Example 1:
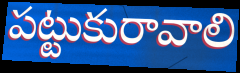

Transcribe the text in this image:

పట్టుకురావాలి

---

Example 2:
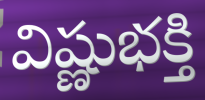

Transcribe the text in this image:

విష్ణుభక్తి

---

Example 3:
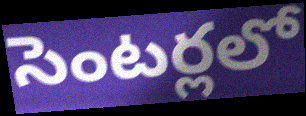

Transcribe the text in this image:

సెంటర్లలో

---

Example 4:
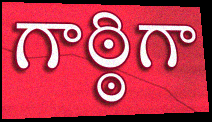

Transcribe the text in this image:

గాఠ్ఠిగా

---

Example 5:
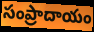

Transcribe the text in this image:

సంప్రాదాయం